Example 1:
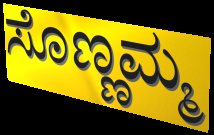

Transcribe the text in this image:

ಸೊಣ್ಣಮ್ಮ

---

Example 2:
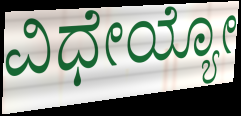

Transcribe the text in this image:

ವಿಧೇಯ್ಯೋ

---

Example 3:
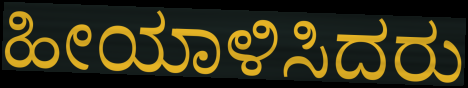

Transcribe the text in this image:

ಹೀಯಾಳಿಸಿದರು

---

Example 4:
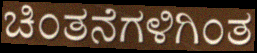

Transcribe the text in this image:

ಚಿಂತನೆಗಳಿಗಿಂತ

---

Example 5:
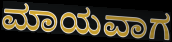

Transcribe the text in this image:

ಮಾಯವಾಗ